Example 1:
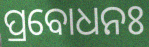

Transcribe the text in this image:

ପ୍ରବୋଧନଃ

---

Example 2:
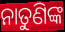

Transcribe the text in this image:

ନାତୁଣିଙ୍କ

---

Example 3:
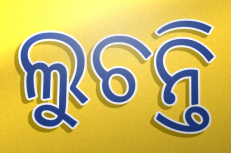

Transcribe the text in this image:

ଲୁଚନ୍ତି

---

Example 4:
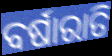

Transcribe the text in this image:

ବର୍ଷାରାତି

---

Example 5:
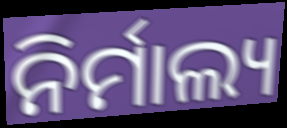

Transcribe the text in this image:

ନିର୍ମାଲ୍ୟ